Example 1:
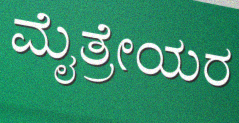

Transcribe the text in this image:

ಮೈತ್ರೇಯರ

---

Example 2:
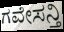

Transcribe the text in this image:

ಗವೇಸನ್ತಿ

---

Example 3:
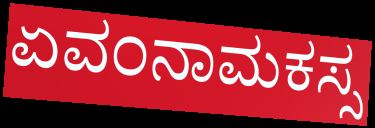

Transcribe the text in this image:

ಏವಂನಾಮಕಸ್ಸ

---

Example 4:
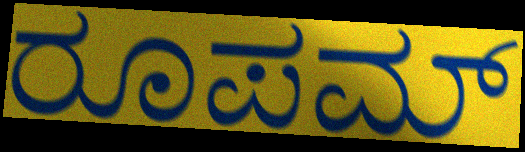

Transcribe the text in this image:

ರೂಪಮ್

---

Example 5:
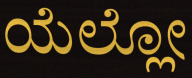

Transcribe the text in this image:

ಯೆಲ್ಲೋ